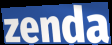
zenda